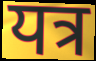
यत्र